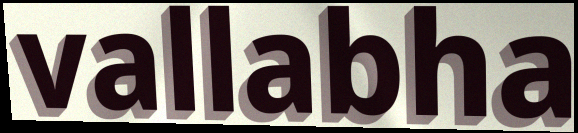
vallabha